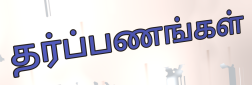
தர்ப்பணங்கள்